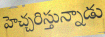
హెచ్చరిస్తున్నాడు